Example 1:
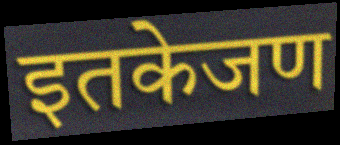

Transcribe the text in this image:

इतकेजण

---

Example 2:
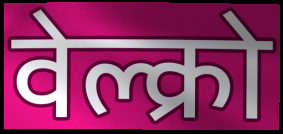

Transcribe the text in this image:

वेल्क्रो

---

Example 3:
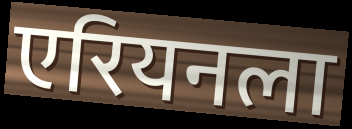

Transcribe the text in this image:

एरियनला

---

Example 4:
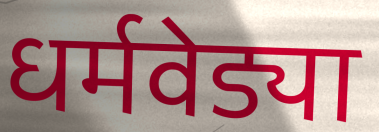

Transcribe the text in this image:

धर्मवेड्या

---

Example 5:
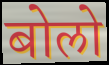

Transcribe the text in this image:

बोलो